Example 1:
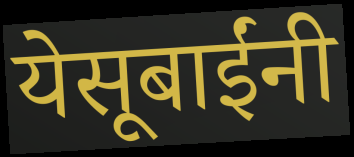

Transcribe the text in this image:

येसूबाईंनी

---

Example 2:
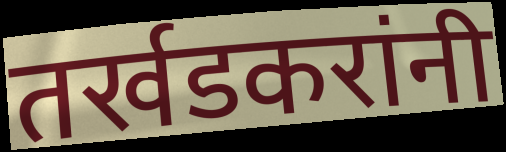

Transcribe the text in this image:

तर्खडकरांनी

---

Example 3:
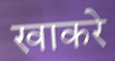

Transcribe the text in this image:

खाकरे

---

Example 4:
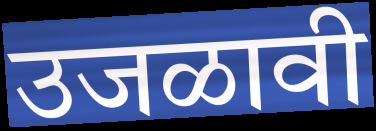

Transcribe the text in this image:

उजळावी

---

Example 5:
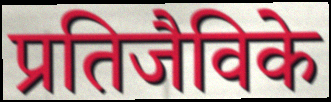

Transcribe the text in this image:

प्रतिजैविके